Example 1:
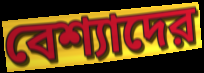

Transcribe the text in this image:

বেশ্যাদের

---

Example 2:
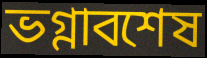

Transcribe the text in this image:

ভগ্নাবশেষ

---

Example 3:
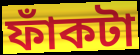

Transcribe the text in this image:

ফাঁকটা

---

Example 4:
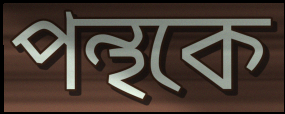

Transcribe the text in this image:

পন্থকে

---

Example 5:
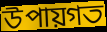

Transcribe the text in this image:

উপায়গত